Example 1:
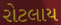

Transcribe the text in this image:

રોટલાય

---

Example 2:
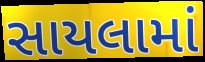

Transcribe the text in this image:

સાયલામાં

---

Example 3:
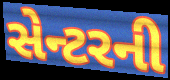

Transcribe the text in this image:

સેન્ટરની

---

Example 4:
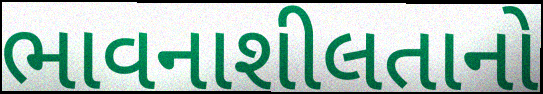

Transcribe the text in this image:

ભાવનાશીલતાનો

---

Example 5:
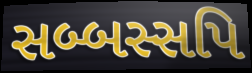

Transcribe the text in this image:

સબ્બસ્સપિ